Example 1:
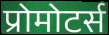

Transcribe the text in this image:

प्रोमोटर्स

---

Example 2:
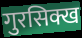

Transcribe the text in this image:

गुरसिक्ख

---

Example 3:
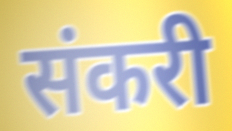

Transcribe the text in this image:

संकरी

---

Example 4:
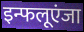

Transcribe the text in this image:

इन्फलूएंजा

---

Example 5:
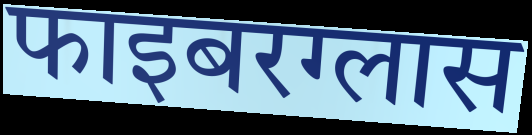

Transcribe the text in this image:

फाइबरग्लास